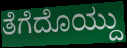
ತೆಗೆದೊಯ್ದು